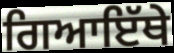
ਗਿਆਇੱਥੇ